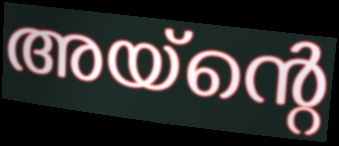
അയ്ന്റെ